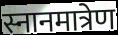
स्नानमात्रेण